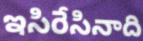
ఇసిరేసినాది